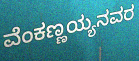
ವೆಂಕಣ್ಣಯ್ಯನವರ